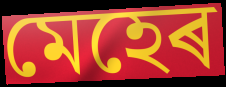
মেহেৰ